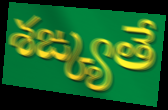
శఙ్క్యతే